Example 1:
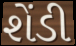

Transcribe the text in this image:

શેંડી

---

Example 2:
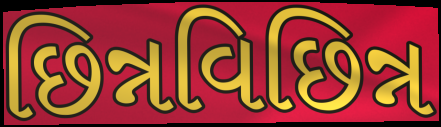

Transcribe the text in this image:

છિન્નવિછિન્ન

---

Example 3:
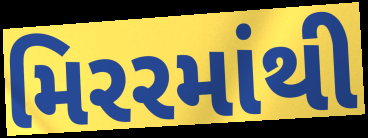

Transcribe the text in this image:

મિરરમાંથી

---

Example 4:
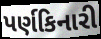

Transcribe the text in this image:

પર્ણકિનારી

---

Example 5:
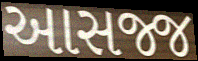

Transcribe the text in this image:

આસજ્જ